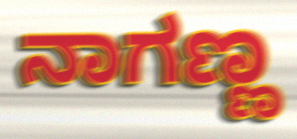
ನಾಗಣ್ಣ